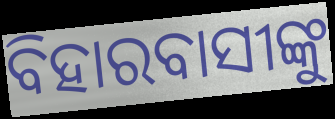
ବିହାରବାସୀଙ୍କୁ